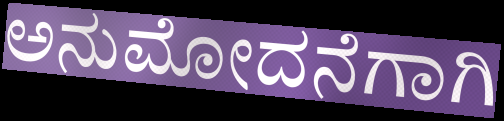
ಅನುಮೋದನೆಗಾಗಿ